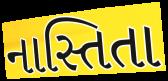
નાસ્તિતા